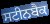
ਸਟੀਨਬੈਕ